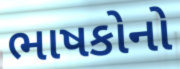
ભાષકોનો